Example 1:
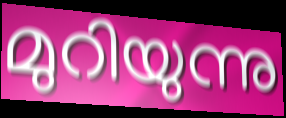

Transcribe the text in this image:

മുറിയുന്നു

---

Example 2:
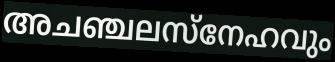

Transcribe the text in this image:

അചഞ്ചലസ്നേഹവും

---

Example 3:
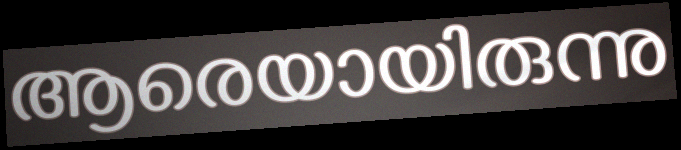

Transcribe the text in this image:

ആരെയായിരുന്നു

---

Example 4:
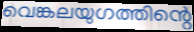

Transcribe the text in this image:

വെങ്കലയുഗത്തിന്റെ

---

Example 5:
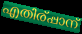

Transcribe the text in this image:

എതിര്പ്പാന്